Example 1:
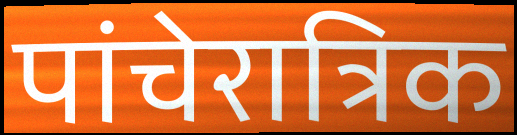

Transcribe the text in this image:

पांचेरात्रिक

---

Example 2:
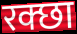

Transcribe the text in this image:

रक्छा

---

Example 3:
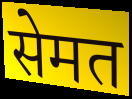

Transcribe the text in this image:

सेमत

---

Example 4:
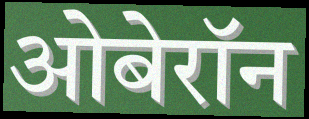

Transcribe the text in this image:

ओबेरॉन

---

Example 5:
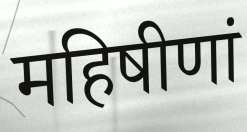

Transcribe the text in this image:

महिषीणां